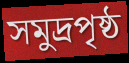
সমুদ্রপৃষ্ঠ